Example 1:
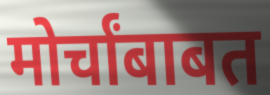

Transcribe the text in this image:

मोर्चांबाबत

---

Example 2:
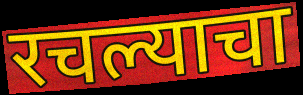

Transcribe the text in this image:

रचल्याचा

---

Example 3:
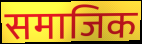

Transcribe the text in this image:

समाजिक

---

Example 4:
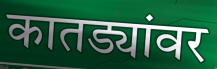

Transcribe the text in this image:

कातड्यांवर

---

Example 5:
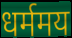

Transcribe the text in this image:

धर्ममय